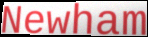
Newham